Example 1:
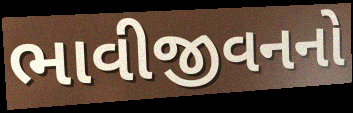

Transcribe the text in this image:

ભાવીજીવનનો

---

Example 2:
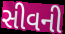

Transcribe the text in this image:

સીવની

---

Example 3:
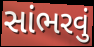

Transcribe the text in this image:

સાંભરવું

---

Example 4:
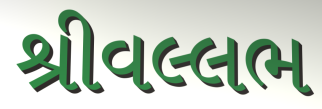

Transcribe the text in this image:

શ્રીવલ્લભ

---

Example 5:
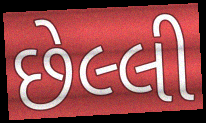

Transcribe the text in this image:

છેલ્લી